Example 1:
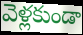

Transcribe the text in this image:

వెళ్లకుండా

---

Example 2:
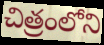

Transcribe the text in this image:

చిత్రంలోని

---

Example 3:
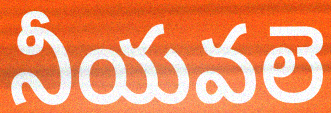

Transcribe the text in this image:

నీయవలె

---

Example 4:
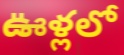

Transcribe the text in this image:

ఊళ్లలో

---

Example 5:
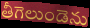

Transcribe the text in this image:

తీగెలుండెను